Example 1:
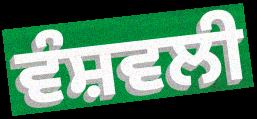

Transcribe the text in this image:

ਵੰਸ਼ਵਲੀ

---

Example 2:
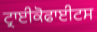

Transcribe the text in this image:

ਟ੍ਰਾਈਕੋਫਾਈਟਸ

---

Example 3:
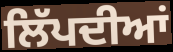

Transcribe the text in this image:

ਲਿੱਪਦੀਆਂ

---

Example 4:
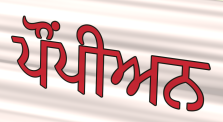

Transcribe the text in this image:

ਪੌਂਪੀਅਨ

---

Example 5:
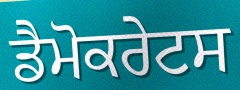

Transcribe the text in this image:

ਡੈਮੋਕਰੇਟਸ